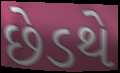
છેડથે